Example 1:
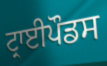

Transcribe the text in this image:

ਟ੍ਰਾਈਪੌਡਸ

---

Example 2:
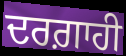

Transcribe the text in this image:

ਦਰਗ਼ਾਹੀ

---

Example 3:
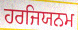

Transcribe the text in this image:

ਹਰਜਿਯਨਮ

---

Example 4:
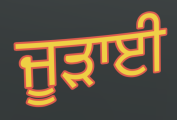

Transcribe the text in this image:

ਜੂੜਾਈ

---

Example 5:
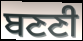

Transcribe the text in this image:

ਬਣਣੀ